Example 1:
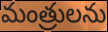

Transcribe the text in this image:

మంత్రులను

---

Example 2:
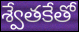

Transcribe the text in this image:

శ్వేతకేతో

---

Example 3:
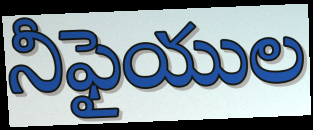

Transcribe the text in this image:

నీఫైయుల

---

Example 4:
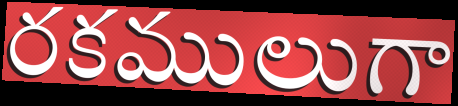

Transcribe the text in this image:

రకములుగా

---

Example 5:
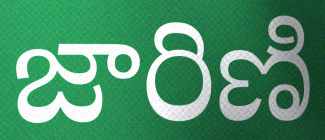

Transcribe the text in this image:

జారిణి